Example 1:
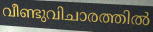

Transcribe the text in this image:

വീണ്ടുവിചാരത്തിൽ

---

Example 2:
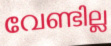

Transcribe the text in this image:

വേണ്ടില്ല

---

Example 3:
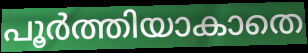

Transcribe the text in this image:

പൂർത്തിയാകാതെ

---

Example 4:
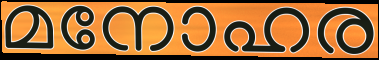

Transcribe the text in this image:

മനോഹര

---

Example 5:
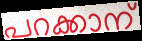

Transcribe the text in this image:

പറക്കാന്